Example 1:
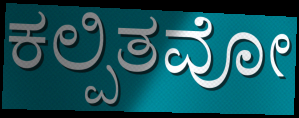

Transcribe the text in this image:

ಕಲ್ಪಿತವೋ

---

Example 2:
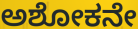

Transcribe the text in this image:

ಅಶೋಕನೇ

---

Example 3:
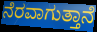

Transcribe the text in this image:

ನೆರವಾಗುತ್ತಾನೆ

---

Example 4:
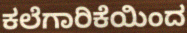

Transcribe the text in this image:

ಕಲೆಗಾರಿಕೆಯಿಂದ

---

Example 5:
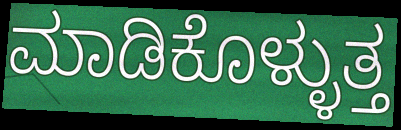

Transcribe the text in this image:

ಮಾಡಿಕೊಳ್ಳುತ್ತ